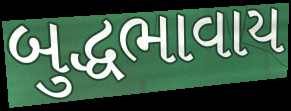
બુદ્ધભાવાય